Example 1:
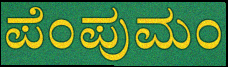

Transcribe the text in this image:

ಪೆಂಪುಮಂ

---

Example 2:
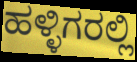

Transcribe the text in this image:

ಹಳ್ಳಿಗರಲ್ಲಿ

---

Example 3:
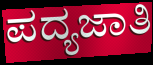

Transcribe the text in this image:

ಪದ್ಯಜಾತಿ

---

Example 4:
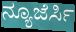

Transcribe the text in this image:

ನ್ಯೂಜೆರ್ಸಿ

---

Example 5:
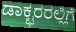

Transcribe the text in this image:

ಡಾಕ್ಟರರಲ್ಲಿಗೆ